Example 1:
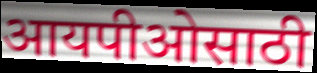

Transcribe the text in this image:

आयपीओसाठी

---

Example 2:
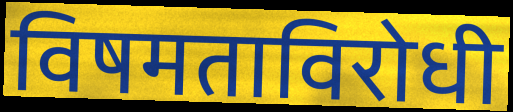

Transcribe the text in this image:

विषमताविरोधी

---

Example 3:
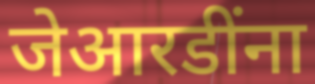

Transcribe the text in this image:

जेआरडींना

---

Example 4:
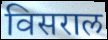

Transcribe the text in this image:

विसराल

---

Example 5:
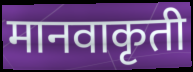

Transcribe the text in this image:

मानवाकृती